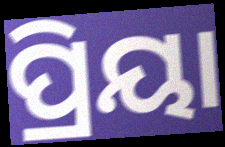
ପ୍ରିୟା